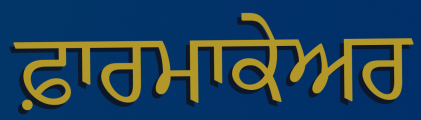
ਫ਼ਾਰਮਾਕੇਅਰ